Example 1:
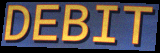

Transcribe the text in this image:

DEBIT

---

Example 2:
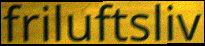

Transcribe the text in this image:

friluftsliv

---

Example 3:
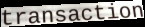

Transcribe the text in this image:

transaction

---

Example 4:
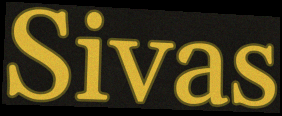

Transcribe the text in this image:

Sivas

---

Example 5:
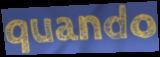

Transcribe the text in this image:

quando